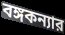
বঙ্গকন্যার